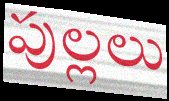
పుల్లలు